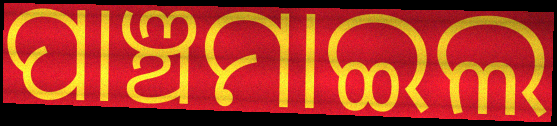
ପାଞ୍ଚମାଇଲ